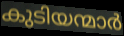
കുടിയന്മാർ